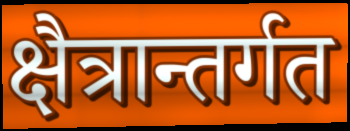
क्षैत्रान्तर्गत